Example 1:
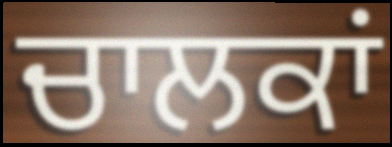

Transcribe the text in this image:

ਚਾਲਕਾਂ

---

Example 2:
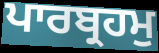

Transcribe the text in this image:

ਪਾਰਬ੍ਰਹਮੁ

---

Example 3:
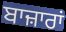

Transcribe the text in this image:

ਬਾਜ਼ਾਰਾਂ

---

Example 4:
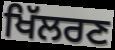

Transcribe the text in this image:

ਖਿੱਲਰਣ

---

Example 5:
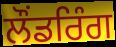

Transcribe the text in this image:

ਲੌਂਡਰਿੰਗ